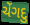
ચેંગદુ